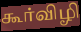
கூர்விழி